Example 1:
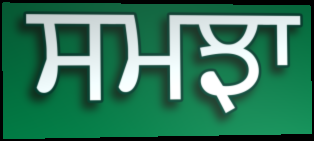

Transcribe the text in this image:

ਸਮਝਾ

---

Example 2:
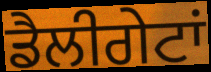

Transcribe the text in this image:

ਡੈਲੀਗੇਟਾਂ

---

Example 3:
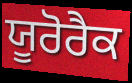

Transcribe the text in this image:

ਯੂਰੋਰੈਕ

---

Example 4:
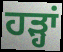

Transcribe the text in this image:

ਹੜ੍ਹਾਂ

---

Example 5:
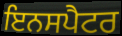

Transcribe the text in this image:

ਇਨਸਪੈਟਰ